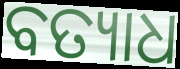
ବତ୍ୟାଧ